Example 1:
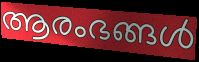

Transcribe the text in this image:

ആരംഭങ്ങൾ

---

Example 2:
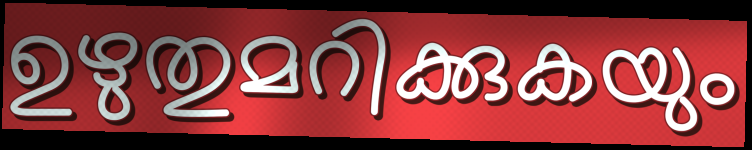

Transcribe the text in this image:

ഉഴുതുമറിക്കുകയും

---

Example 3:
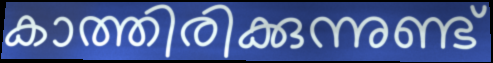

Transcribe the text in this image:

കാത്തിരിക്കുന്നുണ്ട്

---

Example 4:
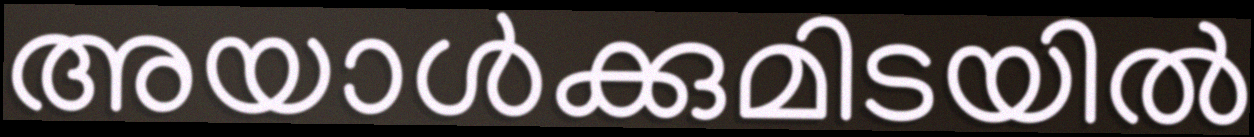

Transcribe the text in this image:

അയാൾക്കുമിടയിൽ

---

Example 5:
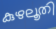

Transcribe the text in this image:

കുഴലൂതി